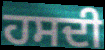
ਹਸਦੀ